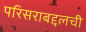
परिसराबद्दलची